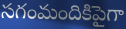
సగంమందికిపైగా